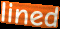
lined